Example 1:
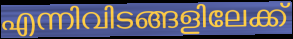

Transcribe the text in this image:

എന്നിവിടങ്ങളിലേക്ക്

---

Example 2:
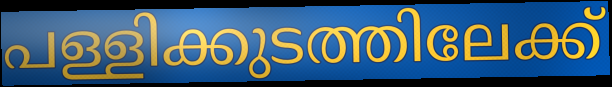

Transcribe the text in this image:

പള്ളിക്കുടത്തിലേക്ക്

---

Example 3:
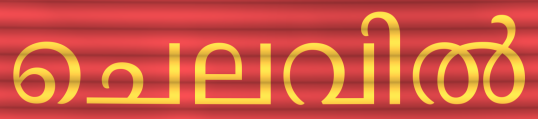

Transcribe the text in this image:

ചെലവിൽ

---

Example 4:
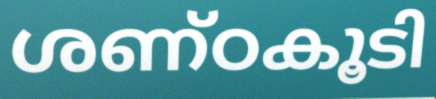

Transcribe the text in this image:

ശണ്ഠകൂടി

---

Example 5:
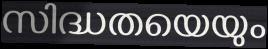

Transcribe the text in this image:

സിദ്ധതയെയും